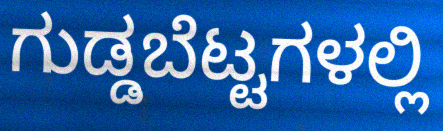
ಗುಡ್ಡಬೆಟ್ಟಗಳಲ್ಲಿ